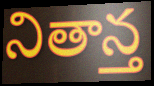
నితాన్త